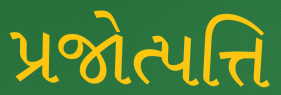
પ્રજોત્પત્તિ